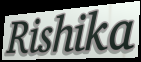
Rishika